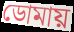
ডোমায়